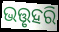
ଭତ୍ତୃହରି